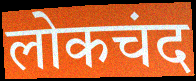
लोकचंद